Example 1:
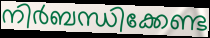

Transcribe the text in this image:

നിർബന്ധിക്കേണ്ട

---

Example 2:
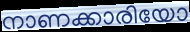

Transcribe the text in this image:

നാണക്കാരിയോ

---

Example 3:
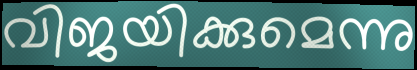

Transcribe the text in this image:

വിജയിക്കുമെന്നു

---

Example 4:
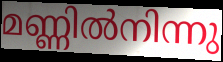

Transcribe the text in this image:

മണ്ണിൽനിന്നു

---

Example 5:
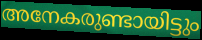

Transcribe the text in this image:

അനേകരുണ്ടായിട്ടും